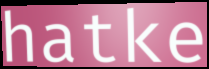
hatke